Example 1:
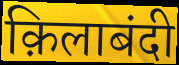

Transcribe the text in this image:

क़िलाबंदी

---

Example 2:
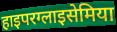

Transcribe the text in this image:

हाइपरग्लाइसेमिया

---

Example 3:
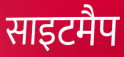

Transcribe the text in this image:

साइटमैप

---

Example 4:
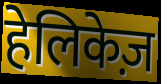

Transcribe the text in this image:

हेलिकेज़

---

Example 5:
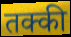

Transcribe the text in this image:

तक्की